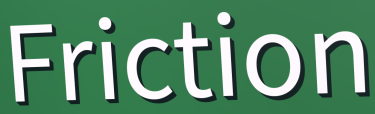
Friction